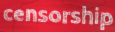
censorship